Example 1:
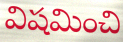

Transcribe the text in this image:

విషమించి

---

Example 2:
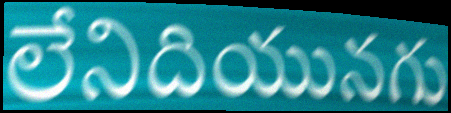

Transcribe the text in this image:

లేనిదియునగు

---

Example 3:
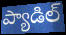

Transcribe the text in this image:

ప్యాడిల్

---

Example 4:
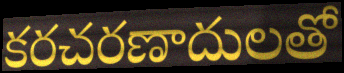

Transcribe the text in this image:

కరచరణాదులతో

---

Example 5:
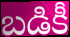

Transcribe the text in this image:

బడికీ